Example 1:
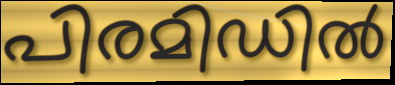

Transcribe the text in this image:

പിരമിഡിൽ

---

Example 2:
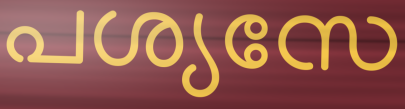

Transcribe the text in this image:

പശ്യസേ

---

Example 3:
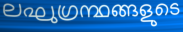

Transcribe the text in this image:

ലഘുഗ്രന്ഥങ്ങളുടെ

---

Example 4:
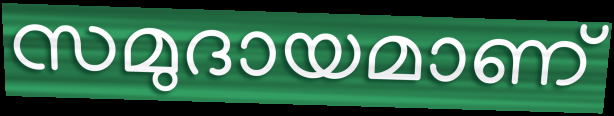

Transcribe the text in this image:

സമുദായമാണ്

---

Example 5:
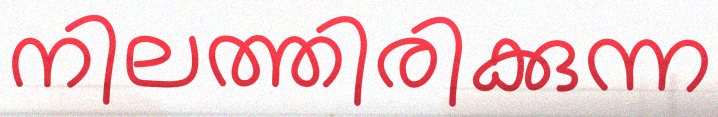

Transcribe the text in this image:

നിലത്തിരിക്കുന്ന